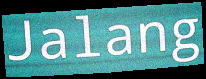
Jalang